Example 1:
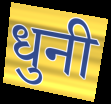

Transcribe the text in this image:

धुनी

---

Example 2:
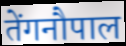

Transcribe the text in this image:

तेंगनौपाल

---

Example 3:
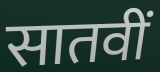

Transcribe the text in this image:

सातवीं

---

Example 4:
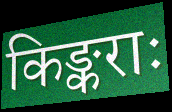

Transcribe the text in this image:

किङ्कराः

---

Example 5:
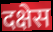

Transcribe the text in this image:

दक्षेस